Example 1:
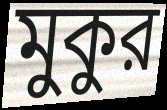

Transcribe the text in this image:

মুকুর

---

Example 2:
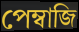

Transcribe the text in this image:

পেম্বাজি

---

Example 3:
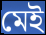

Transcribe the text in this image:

মেই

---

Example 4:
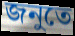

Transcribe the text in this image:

জনুতে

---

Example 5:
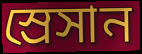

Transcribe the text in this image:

স্রেসান